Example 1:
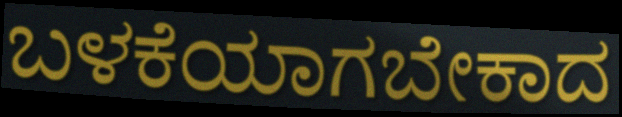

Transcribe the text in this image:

ಬಳಕೆಯಾಗಬೇಕಾದ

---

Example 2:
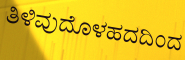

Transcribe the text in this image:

ತಿಳಿವುದೊಳಹದದಿಂದ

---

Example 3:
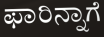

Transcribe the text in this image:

ಫಾರಿನ್ನಾಗೆ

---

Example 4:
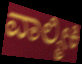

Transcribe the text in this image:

ವಾಲ್ಮೀಕಿ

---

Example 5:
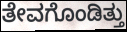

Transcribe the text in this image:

ತೇವಗೊಂಡಿತ್ತು